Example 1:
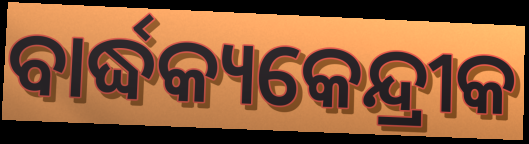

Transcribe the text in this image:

ବାର୍ଦ୍ଧକ୍ୟକେନ୍ଦ୍ରୀକ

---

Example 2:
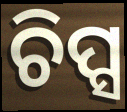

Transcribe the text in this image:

ଚିପ୍ସ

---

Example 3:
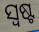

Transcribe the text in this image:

ସ୍ୱଷ୍ଟ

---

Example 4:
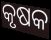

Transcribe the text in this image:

କୃଷକ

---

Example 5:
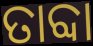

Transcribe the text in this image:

ତାବ୍ଦା